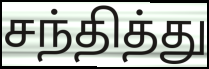
சந்தித்து